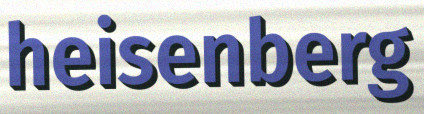
heisenberg